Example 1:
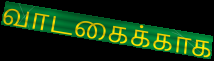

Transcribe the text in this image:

வாடகைக்காக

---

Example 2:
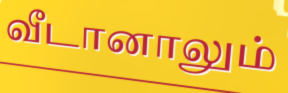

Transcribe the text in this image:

வீடானாலும்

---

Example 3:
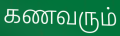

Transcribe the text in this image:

கணவரும்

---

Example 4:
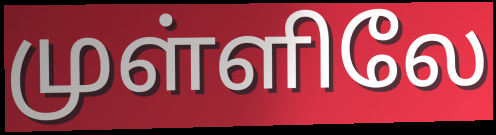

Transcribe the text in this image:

முள்ளிலே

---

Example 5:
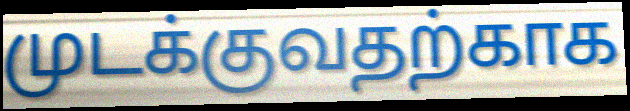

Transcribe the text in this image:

முடக்குவதற்காக